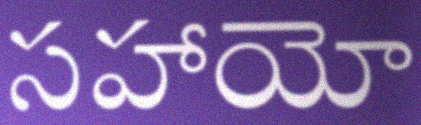
సహాయో